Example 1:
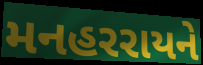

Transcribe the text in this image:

મનહરરાયને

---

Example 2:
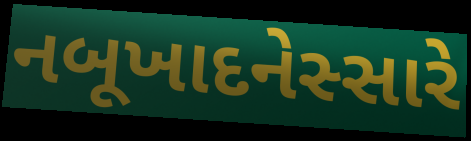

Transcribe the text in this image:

નબૂખાદનેસ્સારે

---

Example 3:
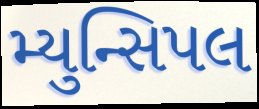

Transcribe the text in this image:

મ્યુન્સિપલ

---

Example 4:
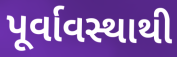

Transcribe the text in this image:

પૂર્વાવસ્થાથી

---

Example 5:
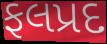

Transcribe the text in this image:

ફલપ્રદ